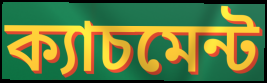
ক্যাচমেন্ট